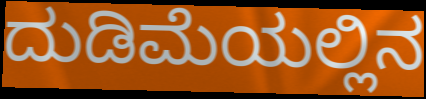
ದುಡಿಮೆಯಲ್ಲಿನ